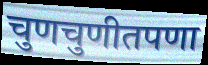
चुणचुणीतपणा